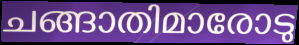
ചങ്ങാതിമാരോടു